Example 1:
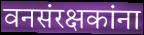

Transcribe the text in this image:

वनसंरक्षकांना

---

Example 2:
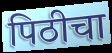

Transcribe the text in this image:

पिठीचा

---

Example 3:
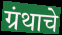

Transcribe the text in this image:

ग्रंथाचे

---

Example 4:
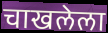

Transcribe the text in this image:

चाखलेला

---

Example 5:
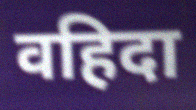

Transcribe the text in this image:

वहिदा